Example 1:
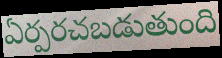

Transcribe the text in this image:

ఏర్పరచబడుతుంది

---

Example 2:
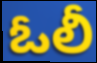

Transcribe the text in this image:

ఓలీ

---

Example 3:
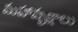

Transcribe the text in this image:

మహావృక్షాలు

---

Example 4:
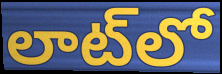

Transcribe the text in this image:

లాట్‌లో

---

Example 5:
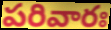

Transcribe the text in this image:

పరివారః